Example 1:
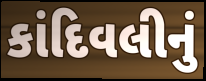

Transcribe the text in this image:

કાંદિવલીનું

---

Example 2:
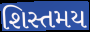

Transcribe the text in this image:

શિસ્તમય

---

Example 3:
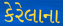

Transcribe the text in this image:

કેરેલાના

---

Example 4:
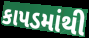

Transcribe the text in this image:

કાપડમાંથી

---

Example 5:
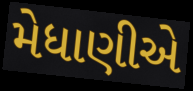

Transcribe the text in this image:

મેધાણીએ